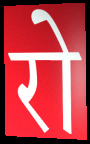
रो